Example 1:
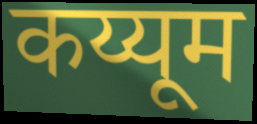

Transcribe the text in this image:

कय्यूम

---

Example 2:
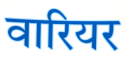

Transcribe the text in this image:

वारियर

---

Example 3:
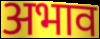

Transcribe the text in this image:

अभाव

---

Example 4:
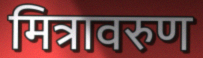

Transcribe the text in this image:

मित्रावरुण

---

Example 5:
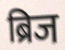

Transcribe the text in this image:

ब्रिज